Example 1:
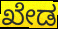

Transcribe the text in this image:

ಖೇಡ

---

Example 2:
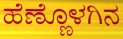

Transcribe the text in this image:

ಹೆಣ್ಣೊಳಗಿನ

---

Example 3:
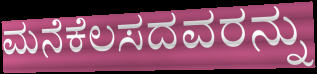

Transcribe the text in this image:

ಮನೆಕೆಲಸದವರನ್ನು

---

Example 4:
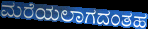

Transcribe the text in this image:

ಮರೆಯಲಾಗದಂತಹ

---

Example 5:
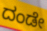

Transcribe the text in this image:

ದಂಡೇ